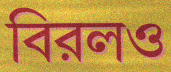
বিরলও